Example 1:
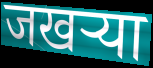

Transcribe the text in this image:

जखऱ्या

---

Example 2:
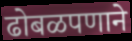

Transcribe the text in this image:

ढोबळपणाने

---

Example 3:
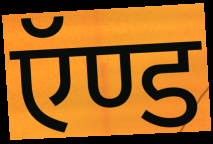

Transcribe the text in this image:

ऍण्ड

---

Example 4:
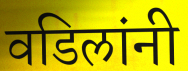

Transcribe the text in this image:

वडिलांनी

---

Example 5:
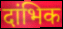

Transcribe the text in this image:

दांभिक